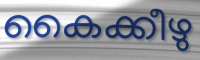
കൈക്കീഴു